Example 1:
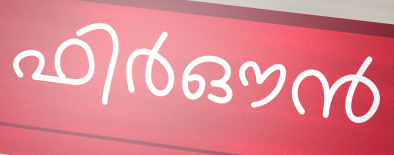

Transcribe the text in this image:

ഫിർഔൻ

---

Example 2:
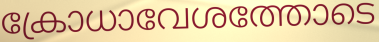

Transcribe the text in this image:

ക്രോധാവേശത്തോടെ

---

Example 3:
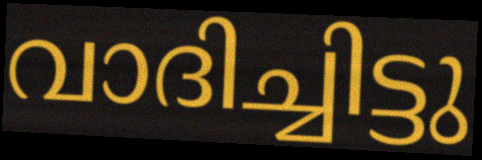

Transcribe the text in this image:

വാദിച്ചിട്ടു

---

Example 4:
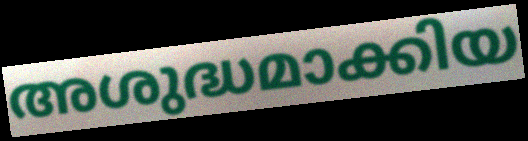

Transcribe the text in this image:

അശുദ്ധമാക്കിയ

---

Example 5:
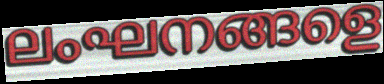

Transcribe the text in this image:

ലംഘനങ്ങളെ